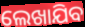
ଲେଖାଯିବ